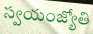
స్వయంజ్యోతి